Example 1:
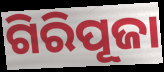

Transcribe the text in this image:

ଗିରିପୂଜା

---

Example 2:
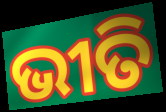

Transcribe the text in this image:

ଭୀତି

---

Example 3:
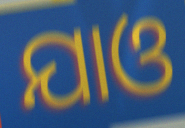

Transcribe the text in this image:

ଯାଓ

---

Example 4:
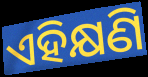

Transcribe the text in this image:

ଏହିକ୍ଷଣି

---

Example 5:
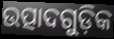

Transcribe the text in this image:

ଉତ୍ପାଦଗୁଡ଼ିକ